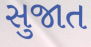
સુજાત